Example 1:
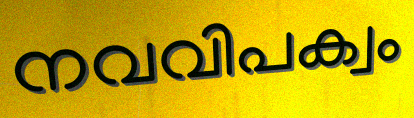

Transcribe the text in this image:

നവവിപക്വം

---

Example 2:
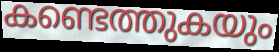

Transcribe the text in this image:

കണ്ടെത്തുകയും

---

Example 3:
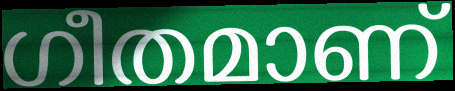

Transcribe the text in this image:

ഗീതമാണ്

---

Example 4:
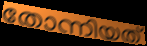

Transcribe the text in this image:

തോന്നിയത്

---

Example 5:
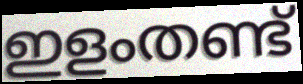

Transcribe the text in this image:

ഇളംതണ്ട്